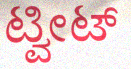
ಟ್ವೀಟ್